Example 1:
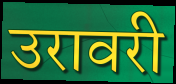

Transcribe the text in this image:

उरावरी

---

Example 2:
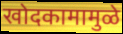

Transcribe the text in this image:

खोदकामामुळे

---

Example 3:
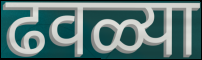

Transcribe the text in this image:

ढवळ्या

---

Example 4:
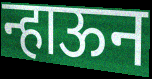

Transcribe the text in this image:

न्हाऊन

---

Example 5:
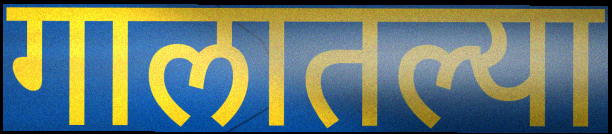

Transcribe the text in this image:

गालातल्या